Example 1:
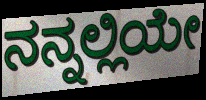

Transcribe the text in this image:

ನನ್ನಲ್ಲಿಯೇ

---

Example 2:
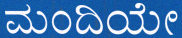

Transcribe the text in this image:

ಮಂದಿಯೇ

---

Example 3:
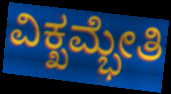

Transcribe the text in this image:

ವಿಕ್ಖಮ್ಭೇತಿ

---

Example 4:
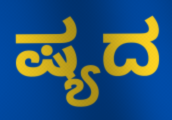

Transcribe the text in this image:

ಷ್ಯದ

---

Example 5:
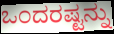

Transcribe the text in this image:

ಒಂದರಷ್ಟನ್ನು